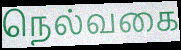
நெல்வகை